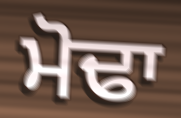
ਮੋਢਾ